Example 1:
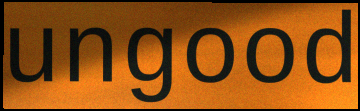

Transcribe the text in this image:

ungood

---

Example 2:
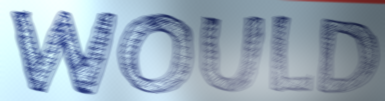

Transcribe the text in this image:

WOULD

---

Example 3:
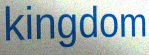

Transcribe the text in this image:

kingdom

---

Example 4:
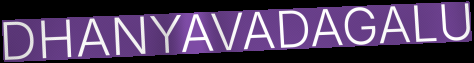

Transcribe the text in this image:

DHANYAVADAGALU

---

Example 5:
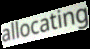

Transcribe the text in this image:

allocating